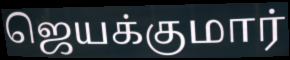
ஜெயக்குமார்